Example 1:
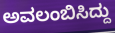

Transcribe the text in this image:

ಅವಲಂಬಿಸಿದ್ದು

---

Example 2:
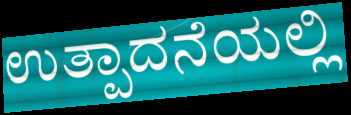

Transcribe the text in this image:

ಉತ್ಪಾದನೆಯಲ್ಲಿ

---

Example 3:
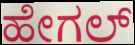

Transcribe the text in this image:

ಹೇಗಲ್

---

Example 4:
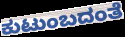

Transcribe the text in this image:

ಕುಟುಂಬದಂತೆ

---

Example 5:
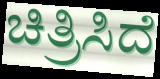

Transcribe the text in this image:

ಚಿತ್ರಿಸಿದೆ